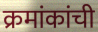
क्रमांकांची